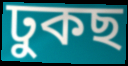
ঢুকছ